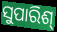
ସୁପାରିଶ୍